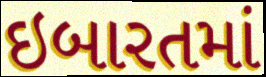
ઇબારતમાં